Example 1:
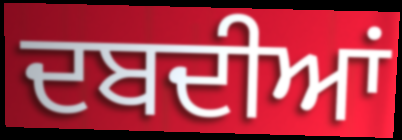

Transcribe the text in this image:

ਦਬਦੀਆਂ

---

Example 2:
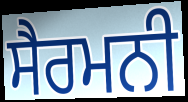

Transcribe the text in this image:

ਸੈਰਮਨੀ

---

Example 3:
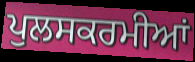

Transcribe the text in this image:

ਪੁਲਸਕਰਮੀਆਂ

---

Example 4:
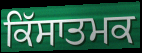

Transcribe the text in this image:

ਕਿੱਸਾਤਮਕ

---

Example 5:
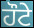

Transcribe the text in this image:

ਹੌਟੇ